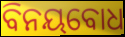
ବିନୟବୋଧ